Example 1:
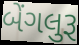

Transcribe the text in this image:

બેંગલુરૂ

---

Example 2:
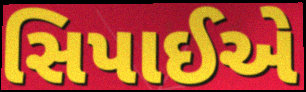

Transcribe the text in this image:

સિપાઈએ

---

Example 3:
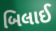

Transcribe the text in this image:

બિલાઈ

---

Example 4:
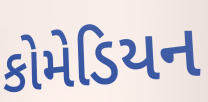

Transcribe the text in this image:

કોમેડિયન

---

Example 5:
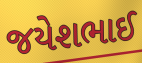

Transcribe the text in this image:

જયેશભાઈ